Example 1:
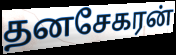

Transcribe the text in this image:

தனசேகரன்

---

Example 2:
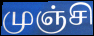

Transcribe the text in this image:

முஞ்சி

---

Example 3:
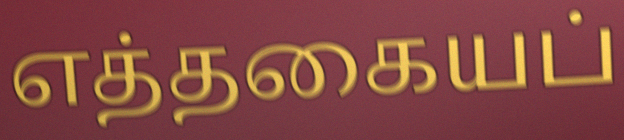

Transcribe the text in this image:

எத்தகையப்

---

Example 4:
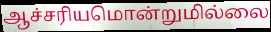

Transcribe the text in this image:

ஆச்சரியமொன்றுமில்லை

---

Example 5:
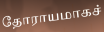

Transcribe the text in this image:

தோராயமாகச்